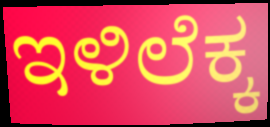
ಇಳಿಲೆಕ್ಕ